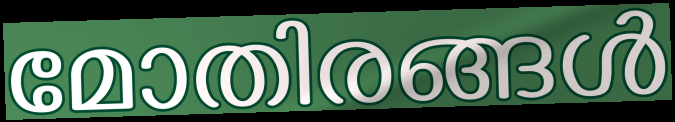
മോതിരങ്ങൾ